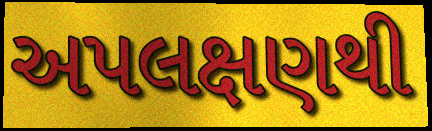
અપલક્ષણથી